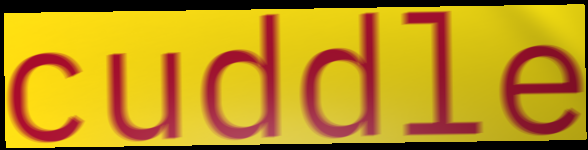
cuddle